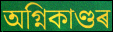
অগ্নিকাণ্ডৰ